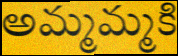
అమ్మమ్మకి